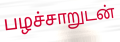
பழச்சாறுடன்